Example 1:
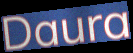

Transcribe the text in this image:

Daura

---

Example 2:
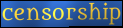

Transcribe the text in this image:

censorship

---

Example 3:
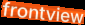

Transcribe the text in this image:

frontview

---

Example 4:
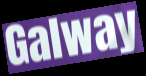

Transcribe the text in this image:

Galway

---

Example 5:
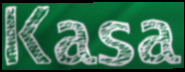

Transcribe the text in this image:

Kasa